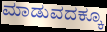
ಮಾಡುವದಕ್ಕೂ